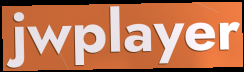
jwplayer